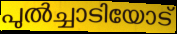
പുൽച്ചാടിയോട്